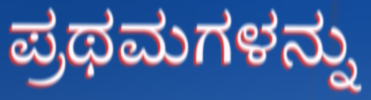
ಪ್ರಥಮಗಳನ್ನು